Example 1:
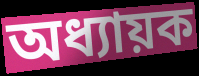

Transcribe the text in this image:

অধ্যায়ক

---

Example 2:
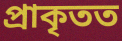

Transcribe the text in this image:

প্ৰাকৃতত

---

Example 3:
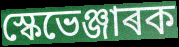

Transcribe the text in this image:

স্কেভেঞ্জাৰক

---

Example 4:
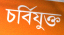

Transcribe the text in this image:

চৰ্বিযুক্ত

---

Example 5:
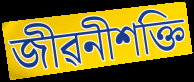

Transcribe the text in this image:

জীৱনীশক্তি